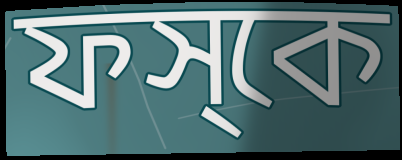
ফস্‌কে